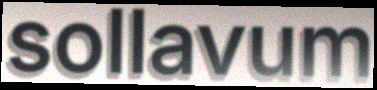
sollavum